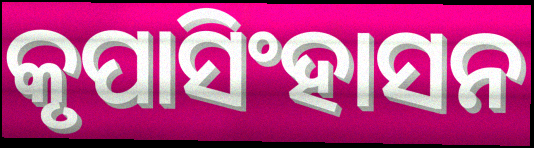
କୃପାସିଂହାସନ